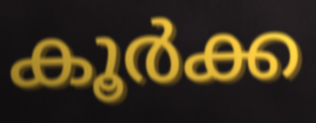
കൂർക്ക